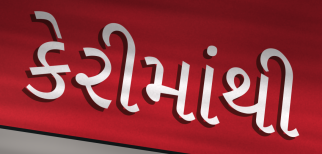
કેરીમાંથી